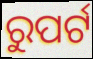
ରୁପର୍ଟ